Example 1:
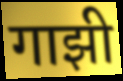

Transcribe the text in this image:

गाझी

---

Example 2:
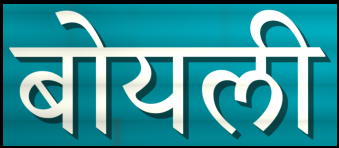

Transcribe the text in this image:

बोयली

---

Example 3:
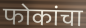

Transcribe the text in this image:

फोकांचा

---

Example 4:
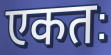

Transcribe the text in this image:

एकतः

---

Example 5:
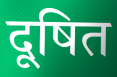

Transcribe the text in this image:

दूषित